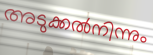
അടുക്കൽനിന്നും